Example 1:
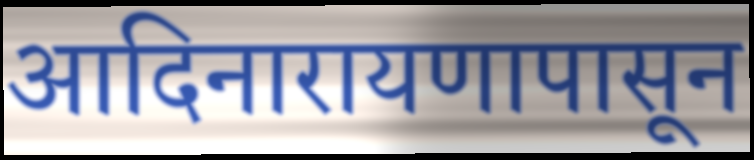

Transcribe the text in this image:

आदिनारायणापासून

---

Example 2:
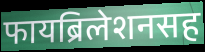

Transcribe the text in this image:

फायब्रिलेशनसह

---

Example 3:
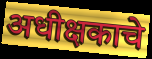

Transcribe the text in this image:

अधीक्षकाचे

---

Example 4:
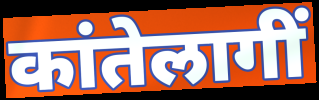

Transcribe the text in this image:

कांतेलागीं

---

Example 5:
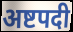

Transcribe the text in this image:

अष्टपदी